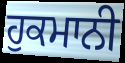
ਹੁਕਮਾਨੀ